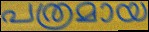
പത്രമായ